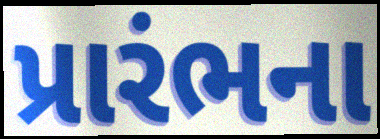
પ્રારંભના